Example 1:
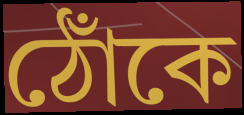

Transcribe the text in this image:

ঠোঁকে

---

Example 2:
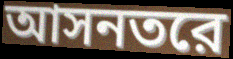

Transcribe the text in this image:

আসনতরে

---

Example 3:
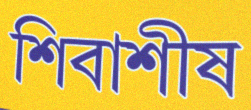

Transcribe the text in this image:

শিবাশীষ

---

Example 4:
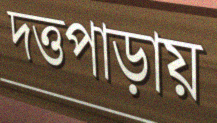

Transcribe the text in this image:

দত্তপাড়ায়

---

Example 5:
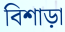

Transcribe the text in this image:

বিশাড়া